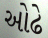
ઓઢે